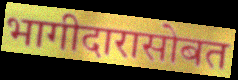
भागीदारासोबत